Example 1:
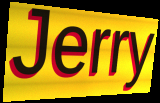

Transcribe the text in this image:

Jerry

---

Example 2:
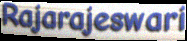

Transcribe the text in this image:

Rajarajeswari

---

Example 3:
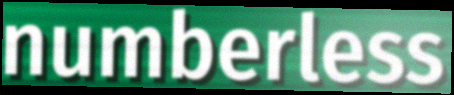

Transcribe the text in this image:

numberless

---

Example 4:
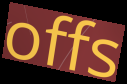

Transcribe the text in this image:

offs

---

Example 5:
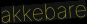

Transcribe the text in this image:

akkebare